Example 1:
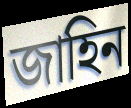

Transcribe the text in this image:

জাহিন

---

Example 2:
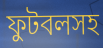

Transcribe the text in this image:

ফুটবলসহ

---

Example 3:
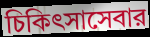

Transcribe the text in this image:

চিকিৎসাসেবার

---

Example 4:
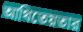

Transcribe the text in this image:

আথিতেয়তার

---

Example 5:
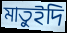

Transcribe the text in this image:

মাতুইদি